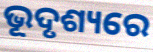
ଭୂଦୃଶ୍ୟରେ